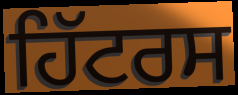
ਹਿੱਟਰਸ